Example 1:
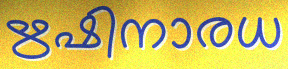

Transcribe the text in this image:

ഋഷിനാരധ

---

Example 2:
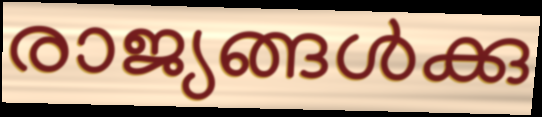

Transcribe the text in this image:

രാജ്യങ്ങൾക്കു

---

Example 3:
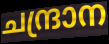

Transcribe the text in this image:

ചന്ദ്രാന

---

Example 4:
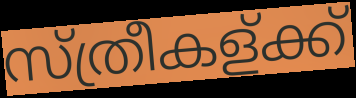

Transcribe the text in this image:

സ്ത്രീകള്ക്ക്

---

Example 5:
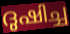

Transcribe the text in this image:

ദുഷിച്ച